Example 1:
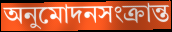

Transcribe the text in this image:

অনুমোদনসংক্রান্ত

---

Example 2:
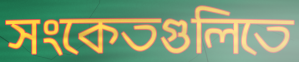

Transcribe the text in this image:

সংকেতগুলিতে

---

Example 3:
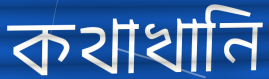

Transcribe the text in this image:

কথাখানি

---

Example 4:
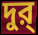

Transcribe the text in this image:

দুর্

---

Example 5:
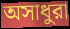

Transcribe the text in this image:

অসাধুরা